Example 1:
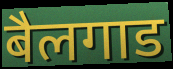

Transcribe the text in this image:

बैलगाड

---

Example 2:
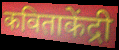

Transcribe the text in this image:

कविताकेंद्री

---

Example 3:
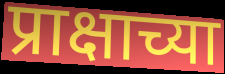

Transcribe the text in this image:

प्राक्षाच्या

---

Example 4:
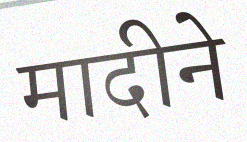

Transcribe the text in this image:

मादीने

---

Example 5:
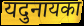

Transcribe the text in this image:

यदुनायका